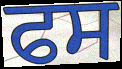
ਫਸ